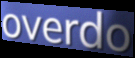
overdo